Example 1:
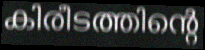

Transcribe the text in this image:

കിരീടത്തിന്റെ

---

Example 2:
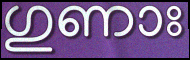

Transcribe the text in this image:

ഗുണാഃ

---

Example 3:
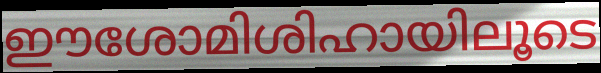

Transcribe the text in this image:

ഈശോമിശിഹായിലൂടെ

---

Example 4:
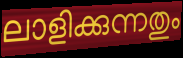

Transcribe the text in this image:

ലാളിക്കുന്നതും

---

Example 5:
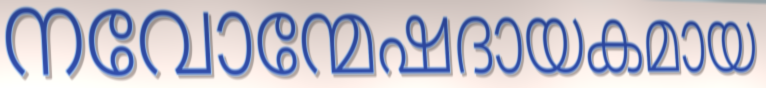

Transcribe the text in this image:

നവോന്മേഷദായകമായ